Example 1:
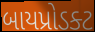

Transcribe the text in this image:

બાયપ્રોડક્ટ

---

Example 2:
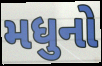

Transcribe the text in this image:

મધુનો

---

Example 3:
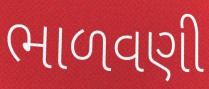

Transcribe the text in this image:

ભાળવણી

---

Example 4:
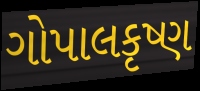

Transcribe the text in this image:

ગોપાલકૃષ્ણ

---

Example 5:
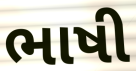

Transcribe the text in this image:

ભાષી